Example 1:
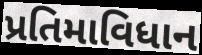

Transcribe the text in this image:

પ્રતિમાવિધાન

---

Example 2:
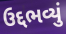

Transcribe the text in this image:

ઉદ્દભવ્યું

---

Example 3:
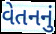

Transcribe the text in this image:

વેતનનું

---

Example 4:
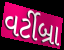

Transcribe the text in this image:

વર્ટીબ્રા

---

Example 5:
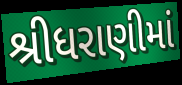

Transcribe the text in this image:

શ્રીધરાણીમાં